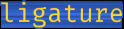
ligature